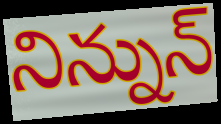
నిన్నున్